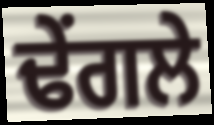
ਢੇਂਗਲੇ